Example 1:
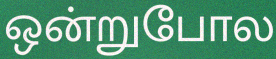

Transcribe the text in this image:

ஒன்றுபோல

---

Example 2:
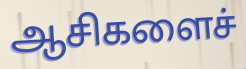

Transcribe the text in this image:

ஆசிகளைச்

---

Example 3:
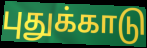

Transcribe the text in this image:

புதுக்காடு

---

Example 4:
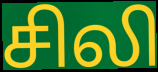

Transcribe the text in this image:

சிலி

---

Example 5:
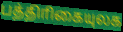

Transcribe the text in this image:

பத்திரிகையுலக